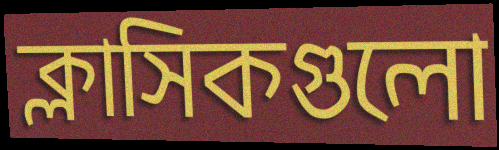
ক্লাসিকগুলো